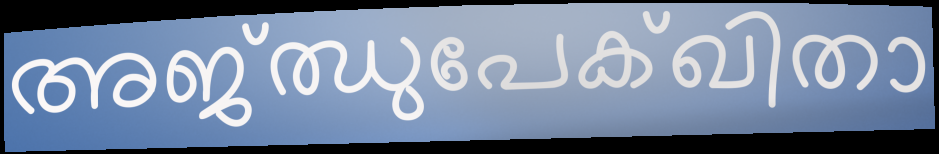
അജ്ഝുപേക്ഖിതാ